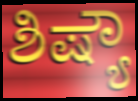
ಶಿಷ್ಯೌ